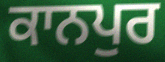
ਕਾਨਪੁਰ